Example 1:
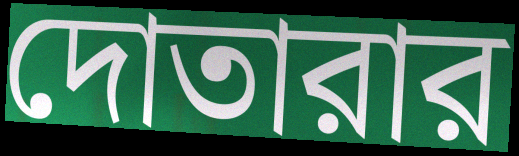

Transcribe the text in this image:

দোতারার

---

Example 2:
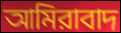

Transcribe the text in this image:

আমিরাবাদ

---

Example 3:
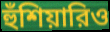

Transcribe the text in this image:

হুঁশিয়ারিও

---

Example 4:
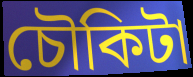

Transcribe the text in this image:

চৌকিটা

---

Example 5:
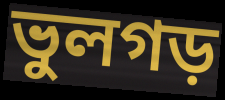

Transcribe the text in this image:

ভুলগড়